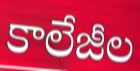
కాలేజీల